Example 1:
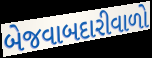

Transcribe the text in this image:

બેજવાબદારીવાળો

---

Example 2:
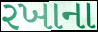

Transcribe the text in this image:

રખાના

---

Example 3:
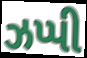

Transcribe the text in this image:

ઝપ્પી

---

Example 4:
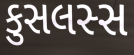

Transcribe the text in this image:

કુસલસ્સ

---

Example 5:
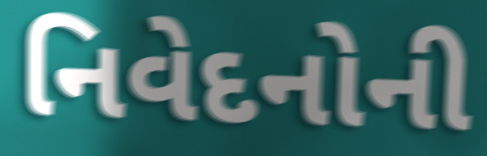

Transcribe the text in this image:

નિવેદનોની